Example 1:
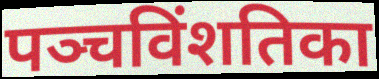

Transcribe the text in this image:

पञ्चविंशतिका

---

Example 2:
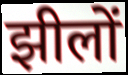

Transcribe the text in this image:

झीलों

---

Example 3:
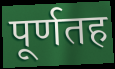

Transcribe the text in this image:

पूर्णतह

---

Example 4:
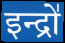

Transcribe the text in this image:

इन्द्रो॑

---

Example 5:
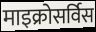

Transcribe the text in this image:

माइक्रोसर्विस